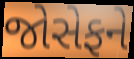
જોસેફને